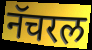
नॅचरल